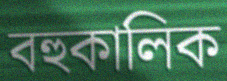
বহুকালিক